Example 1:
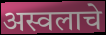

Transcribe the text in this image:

अस्वलाचे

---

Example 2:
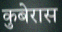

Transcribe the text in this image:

कुबेरास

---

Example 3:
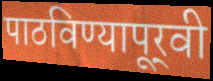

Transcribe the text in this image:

पाठविण्यापूर्वी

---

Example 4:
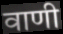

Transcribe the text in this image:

वाणी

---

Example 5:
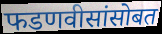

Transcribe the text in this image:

फडणवीसांसोबत